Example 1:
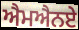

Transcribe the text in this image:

ਐਮਐਨਏ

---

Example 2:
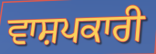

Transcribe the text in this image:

ਵਾਸ਼ਪਕਾਰੀ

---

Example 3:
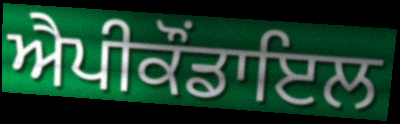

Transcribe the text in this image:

ਐਪੀਕੌਂਡਾਇਲ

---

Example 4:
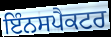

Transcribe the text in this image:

ਇੰਨਸਪੈਕਟਰ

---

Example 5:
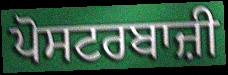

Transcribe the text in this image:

ਪੋਸਟਰਬਾਜ਼ੀ